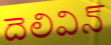
దెలివిన్